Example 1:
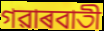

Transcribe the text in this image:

গৱাৰবাতী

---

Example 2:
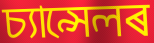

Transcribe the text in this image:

চ্যান্সেলৰ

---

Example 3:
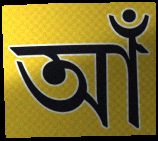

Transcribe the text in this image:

আঁ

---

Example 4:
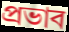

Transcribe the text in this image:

প্ৰভাব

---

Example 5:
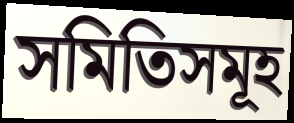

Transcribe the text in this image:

সমিতিসমূহ